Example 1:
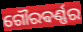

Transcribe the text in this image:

ଗୌରଵର୍ଣ୍ଣର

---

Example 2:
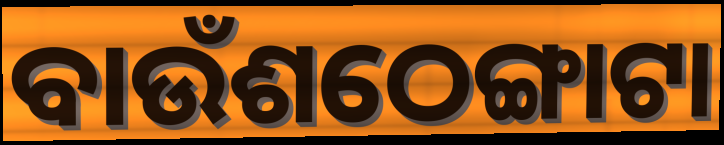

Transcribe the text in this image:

ବାଉଁଶଠେଙ୍ଗାଟା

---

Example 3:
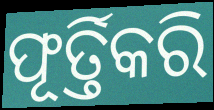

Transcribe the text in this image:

ଫୂର୍ତ୍ତିକରି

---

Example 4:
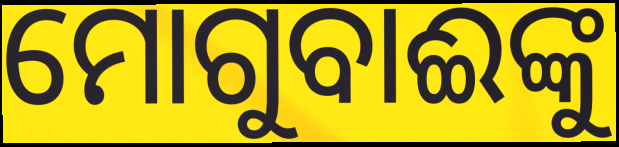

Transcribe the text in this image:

ମୋଗୁବାଈଙ୍କୁ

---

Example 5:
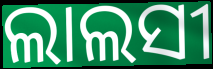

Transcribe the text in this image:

ଲାଲସୀ